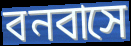
বনবাসে